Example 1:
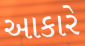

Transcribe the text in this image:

આકારે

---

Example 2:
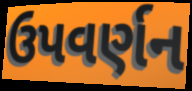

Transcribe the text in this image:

ઉપવર્ણન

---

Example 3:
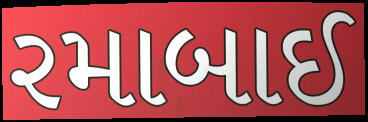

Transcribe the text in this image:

રમાબાઈ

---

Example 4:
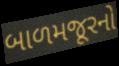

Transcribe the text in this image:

બાળમજૂરનો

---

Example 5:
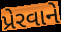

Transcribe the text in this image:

પ્રેરવાને